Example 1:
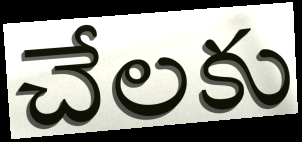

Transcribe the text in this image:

చేలకు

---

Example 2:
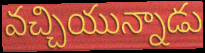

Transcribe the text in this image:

వచ్చియున్నాడు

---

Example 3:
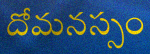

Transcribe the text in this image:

దోమనస్సం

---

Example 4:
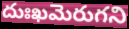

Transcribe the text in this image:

దుఃఖమెరుగని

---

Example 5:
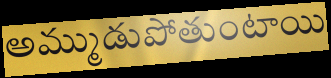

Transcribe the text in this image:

అమ్ముడుపోతుంటాయి